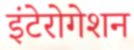
इंटेरोगेशन